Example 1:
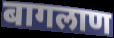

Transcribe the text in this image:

बागलाण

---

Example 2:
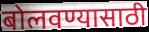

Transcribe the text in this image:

बोलवण्यासाठी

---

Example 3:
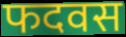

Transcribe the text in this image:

फदवस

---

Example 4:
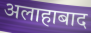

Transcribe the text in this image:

अलाहाबाद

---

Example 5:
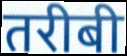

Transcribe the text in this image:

तरीबी